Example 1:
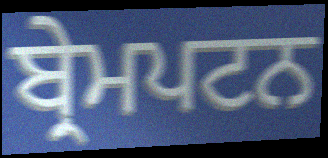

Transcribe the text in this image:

ਬ੍ਰੇਮਪਟਨ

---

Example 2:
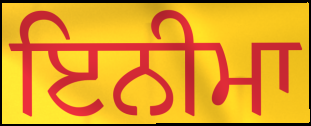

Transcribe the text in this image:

ਇਨੀਮਾ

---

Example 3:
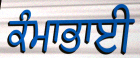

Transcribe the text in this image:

ਕੰਮਾਭਾਈ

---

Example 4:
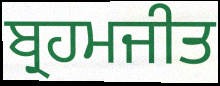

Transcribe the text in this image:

ਬ੍ਰਹਮਜੀਤ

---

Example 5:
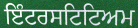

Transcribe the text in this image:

ਇੰਟਰਸਟਿਟਿਅਮ